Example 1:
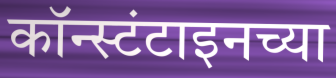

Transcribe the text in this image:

कॉन्स्टंटाइनच्या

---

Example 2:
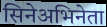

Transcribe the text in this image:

सिनेअभिनेता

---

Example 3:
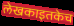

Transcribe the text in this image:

लेखकाइतकेच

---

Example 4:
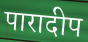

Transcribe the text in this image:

पारादीप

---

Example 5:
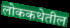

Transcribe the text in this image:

लोककथेतील